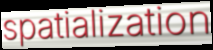
spatialization